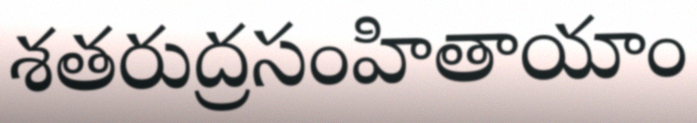
శతరుద్రసంహితాయాం